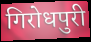
गिरोधपुरी